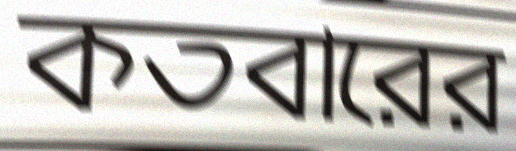
কতবারের